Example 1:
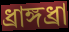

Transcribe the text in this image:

ধ্রাঙ্গধ্রা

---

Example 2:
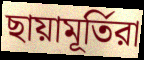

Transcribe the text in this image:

ছায়ামূর্তিরা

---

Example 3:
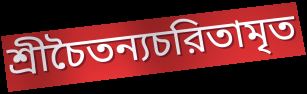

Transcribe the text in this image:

শ্রীচৈতন্যচরিতামৃত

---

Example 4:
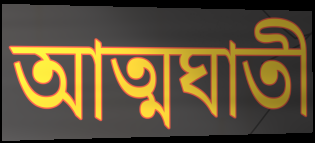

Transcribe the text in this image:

আত্মঘাতী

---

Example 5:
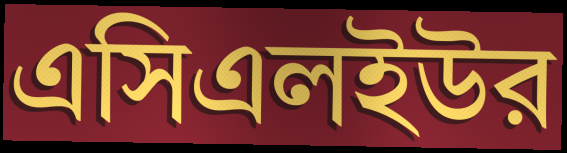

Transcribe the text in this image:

এসিএলইউর